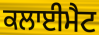
ਕਲਾਈਮੈਟ